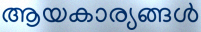
ആയകാര്യങ്ങൾ